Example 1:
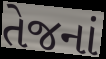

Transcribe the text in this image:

તેજનાં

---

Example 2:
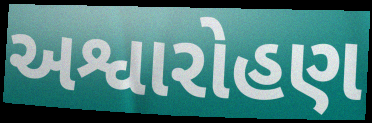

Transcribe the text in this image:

અશ્વારોહણ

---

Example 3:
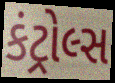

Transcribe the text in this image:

કંટ્રોલ્સ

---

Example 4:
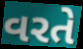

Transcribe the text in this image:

વરતે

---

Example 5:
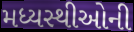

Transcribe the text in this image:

મધ્યસ્થીઓની